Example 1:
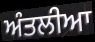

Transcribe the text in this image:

ਅੰਤਲੀਆ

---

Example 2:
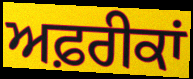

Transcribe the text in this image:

ਅਫ਼ਰੀਕਾਂ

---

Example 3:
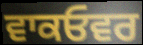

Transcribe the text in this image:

ਵਾਕਓਵਰ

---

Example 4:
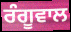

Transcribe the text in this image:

ਰੰਗੂਵਾਲ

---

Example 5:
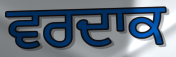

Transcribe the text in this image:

ਵਰਦਾਕ